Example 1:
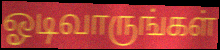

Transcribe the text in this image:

ஓடிவாருங்கள்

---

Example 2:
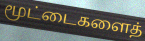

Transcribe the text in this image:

மூட்டைகளைத்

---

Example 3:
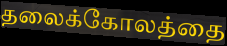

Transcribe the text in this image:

தலைக்கோலத்தை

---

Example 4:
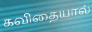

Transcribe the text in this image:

கவிதையால்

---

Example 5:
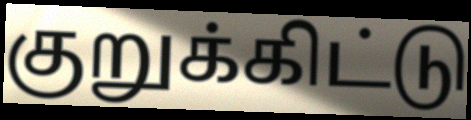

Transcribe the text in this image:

குறுக்கிட்டு